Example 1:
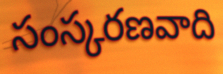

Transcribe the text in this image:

సంస్కరణవాది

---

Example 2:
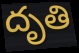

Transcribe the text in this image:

దృతి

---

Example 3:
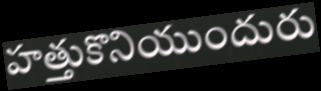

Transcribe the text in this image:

హత్తుకొనియుందురు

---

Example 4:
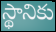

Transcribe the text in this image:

స్థానికు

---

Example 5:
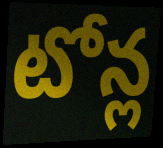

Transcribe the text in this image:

టోన్ల